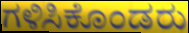
ಗಳಿಸಿಕೊಂಡರು